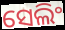
ସେଲିଂ